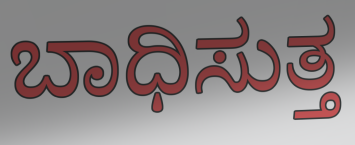
ಬಾಧಿಸುತ್ತ